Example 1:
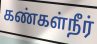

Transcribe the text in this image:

கண்கள்நீர்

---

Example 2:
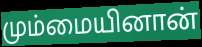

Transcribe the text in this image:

மும்மையினான்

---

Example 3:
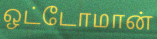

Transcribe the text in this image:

ஒட்டோமான்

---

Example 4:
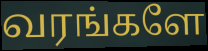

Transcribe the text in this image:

வரங்களே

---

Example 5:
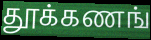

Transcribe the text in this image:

தூக்கணங்